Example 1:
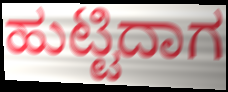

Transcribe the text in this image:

ಹುಟ್ಟಿದಾಗ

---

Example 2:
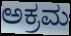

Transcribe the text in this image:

ಅಕ್ರಮ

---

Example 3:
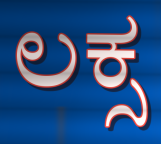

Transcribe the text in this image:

ಲಕ್ಸ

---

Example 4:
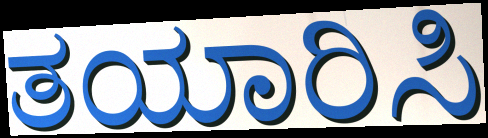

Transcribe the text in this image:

ತಯಾರಿಸಿ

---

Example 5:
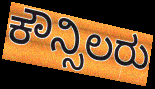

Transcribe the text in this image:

ಕೌನ್ಸಿಲರು